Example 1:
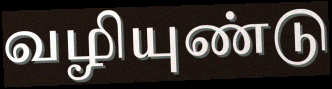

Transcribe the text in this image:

வழியுண்டு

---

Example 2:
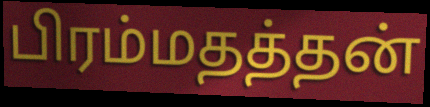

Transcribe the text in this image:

பிரம்மதத்தன்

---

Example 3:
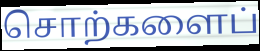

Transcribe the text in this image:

சொற்களைப்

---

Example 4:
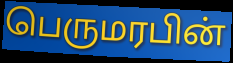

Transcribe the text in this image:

பெருமரபின்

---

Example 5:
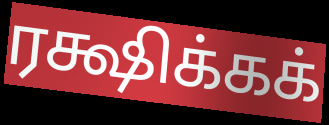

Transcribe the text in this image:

ரக்ஷிக்கக்